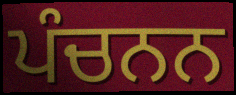
ਪੰਚਨਨ